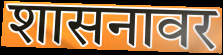
शासनावर